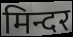
मिन्दर